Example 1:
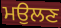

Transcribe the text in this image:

ਮਉਲਣ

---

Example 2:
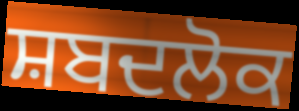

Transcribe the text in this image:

ਸ਼ਬਦਲੋਕ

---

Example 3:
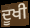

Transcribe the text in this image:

ਦੂਖੀ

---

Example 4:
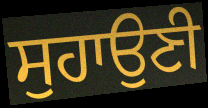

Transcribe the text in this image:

ਸੁਹਾਉਣੀ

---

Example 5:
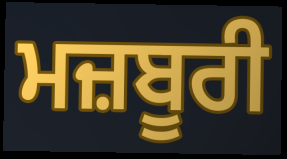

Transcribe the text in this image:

ਮਜ਼ਬੂਰੀ